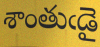
శాంతుఁడై